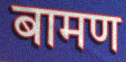
बामण